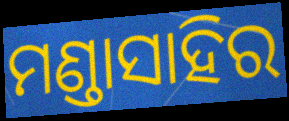
ମଣ୍ଡାସାହିର